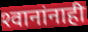
श्वानांनाही